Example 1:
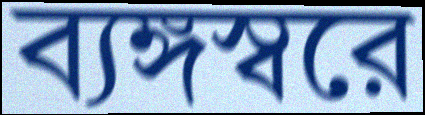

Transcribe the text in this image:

ব্যঙ্গস্বরে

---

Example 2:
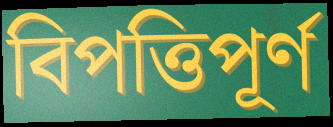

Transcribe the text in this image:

বিপত্তিপূর্ণ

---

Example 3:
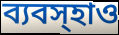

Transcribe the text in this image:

ব্যবস্হাও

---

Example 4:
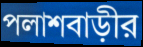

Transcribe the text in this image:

পলাশবাড়ীর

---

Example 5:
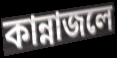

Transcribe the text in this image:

কান্নাজলে